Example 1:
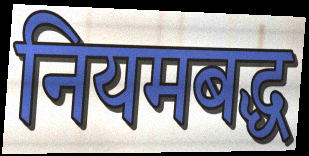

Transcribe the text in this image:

नियमबद्ध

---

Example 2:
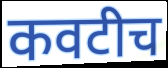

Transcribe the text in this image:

कवटीच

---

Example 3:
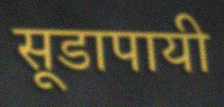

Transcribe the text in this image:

सूडापायी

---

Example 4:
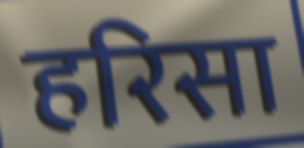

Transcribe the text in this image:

हरिसा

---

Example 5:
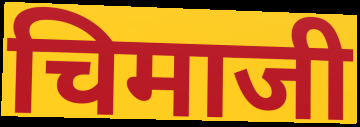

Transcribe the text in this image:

चिमाजी